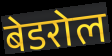
बेडरोल